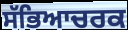
ਸੱਭਿਆਚਰਕ